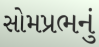
સોમપ્રભનું